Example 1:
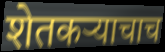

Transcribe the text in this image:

शेतकऱ्याचाच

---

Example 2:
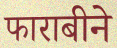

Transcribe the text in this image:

फाराबीने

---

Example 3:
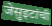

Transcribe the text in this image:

जेसुइटांची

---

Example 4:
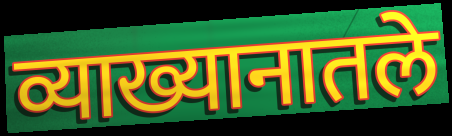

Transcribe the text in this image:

व्याख्यानातले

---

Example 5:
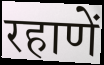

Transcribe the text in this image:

रहाणें